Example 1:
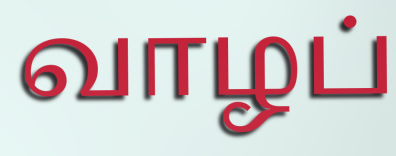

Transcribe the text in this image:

வாழப்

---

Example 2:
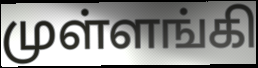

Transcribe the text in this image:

முள்ளங்கி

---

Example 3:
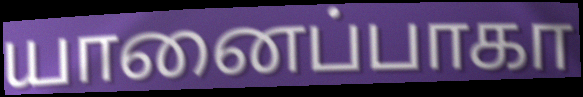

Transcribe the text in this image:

யானைப்பாகா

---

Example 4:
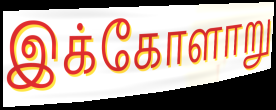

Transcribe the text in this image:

இக்கோளாறு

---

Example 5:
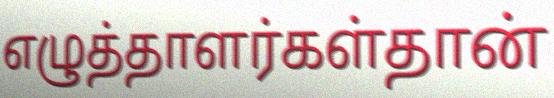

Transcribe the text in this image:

எழுத்தாளர்கள்தான்